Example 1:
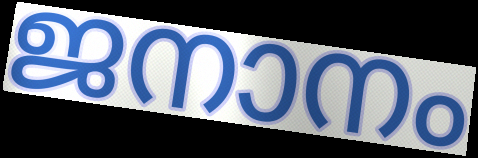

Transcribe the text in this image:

ജനാനം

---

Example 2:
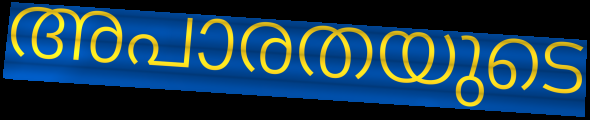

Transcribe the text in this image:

അപാരതയുടെ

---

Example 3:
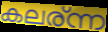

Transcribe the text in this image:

കലര്ന്ന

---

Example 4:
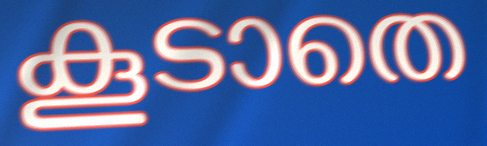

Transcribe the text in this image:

കൂടാതെ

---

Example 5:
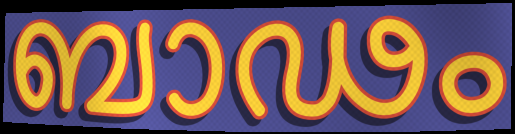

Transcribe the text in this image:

ബാഢം